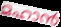
മഹാൻ